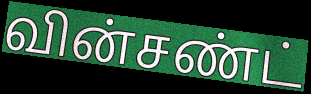
வின்சண்ட்